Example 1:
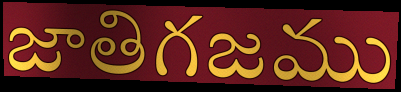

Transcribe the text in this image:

జాతిగజము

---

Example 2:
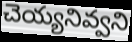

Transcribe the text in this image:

చెయ్యనివ్వని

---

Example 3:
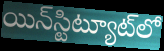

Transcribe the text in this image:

యిన్‌స్టిట్యూట్‌లో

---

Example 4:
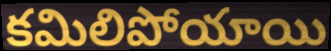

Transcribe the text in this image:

కమిలిపోయాయి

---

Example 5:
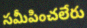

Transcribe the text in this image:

సమీపించలేరు